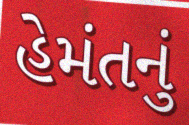
હેમંતનું